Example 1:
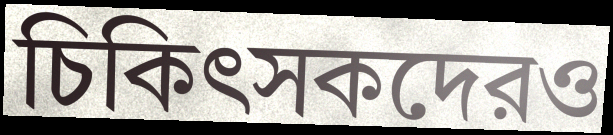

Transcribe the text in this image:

চিকিৎসকদেরও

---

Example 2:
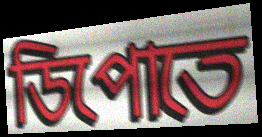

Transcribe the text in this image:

ডিপোতে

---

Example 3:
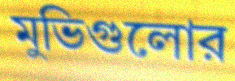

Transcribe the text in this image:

মুভিগুলোর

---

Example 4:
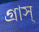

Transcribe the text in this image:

গ্রাস্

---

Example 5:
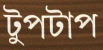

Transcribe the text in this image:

টুপটাপ